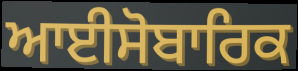
ਆਈਸੋਬਾਰਿਕ